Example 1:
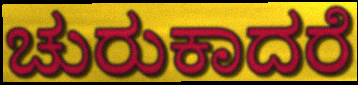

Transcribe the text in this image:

ಚುರುಕಾದರೆ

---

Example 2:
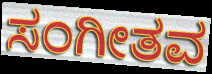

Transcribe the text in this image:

ಸಂಗೀತವ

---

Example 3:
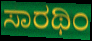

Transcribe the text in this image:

ಸಾರಥಿಂ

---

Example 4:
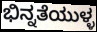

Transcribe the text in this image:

ಭಿನ್ನತೆಯುಳ್ಳ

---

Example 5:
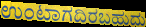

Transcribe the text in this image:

ಉಂಟಾಗದಿರಬಹುದು